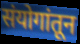
संयोगांतून